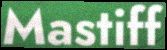
Mastiff